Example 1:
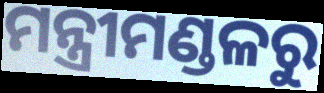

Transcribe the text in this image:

ମନ୍ତ୍ରୀମଣ୍ଡଳରୁ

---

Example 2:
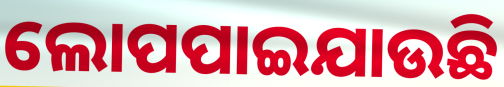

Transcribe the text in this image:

ଲୋପପାଇଯାଉଛି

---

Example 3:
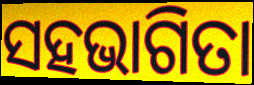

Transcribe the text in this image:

ସହଭାଗିତା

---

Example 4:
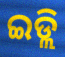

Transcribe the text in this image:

ଇଡ୍ଲି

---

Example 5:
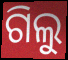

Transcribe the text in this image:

ଗିଲୁ